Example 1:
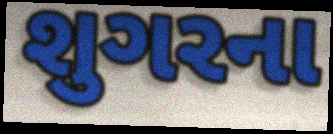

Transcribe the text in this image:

શુગરના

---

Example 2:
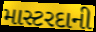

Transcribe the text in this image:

માસ્ટરદાની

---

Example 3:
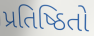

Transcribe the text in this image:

પ્રતિષ્ઠિતો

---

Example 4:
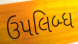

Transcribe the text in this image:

ઉપલિબ્ધ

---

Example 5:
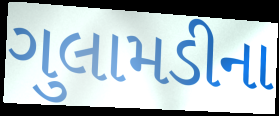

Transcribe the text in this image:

ગુલામડીના